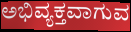
ಅಭಿವ್ಯಕ್ತವಾಗುವ